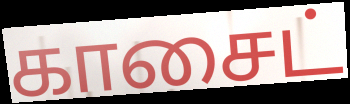
காசைட்